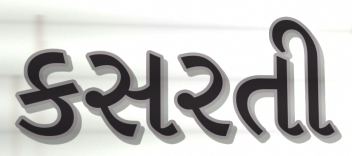
કસરતી